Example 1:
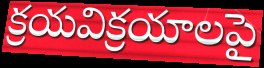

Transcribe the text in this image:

క్రయవిక్రయాలపై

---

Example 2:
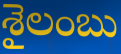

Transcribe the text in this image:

శైలంబు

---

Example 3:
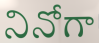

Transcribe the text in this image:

నినోగా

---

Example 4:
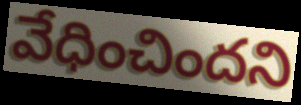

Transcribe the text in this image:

వేధించిందని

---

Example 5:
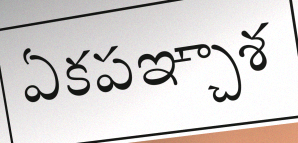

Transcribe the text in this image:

ఏకపఞ్చాశ